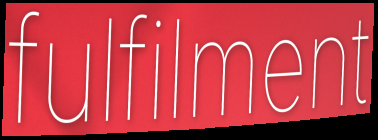
fulfilment